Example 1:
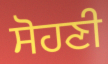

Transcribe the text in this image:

ਸੋਹਣੀ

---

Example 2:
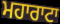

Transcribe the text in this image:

ਮਹਾਰਾਟਾ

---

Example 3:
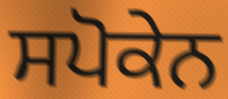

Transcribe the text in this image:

ਸਪੋਕੇਨ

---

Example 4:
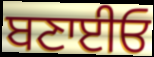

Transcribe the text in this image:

ਬਣਾਈਓ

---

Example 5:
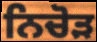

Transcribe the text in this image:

ਨਿਚੋੜ